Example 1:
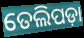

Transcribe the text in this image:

ତେଲିପଡ଼ା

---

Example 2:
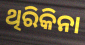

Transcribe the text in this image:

ଥିରିକିନା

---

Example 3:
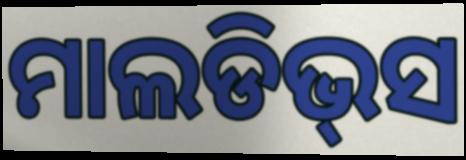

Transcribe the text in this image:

ମାଲଡିଭ୍‌ସ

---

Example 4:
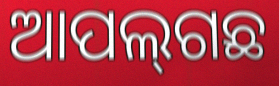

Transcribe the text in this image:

ଆପଲ୍‍ଗଛ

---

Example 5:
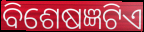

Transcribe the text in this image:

ବିଶେଷଜ୍ଞଟିଏ